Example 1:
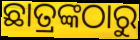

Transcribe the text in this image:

ଛାତ୍ରଙ୍କଠାରୁ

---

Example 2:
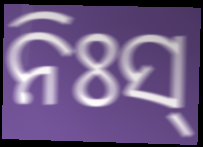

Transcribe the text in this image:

ନିଃସ୍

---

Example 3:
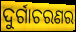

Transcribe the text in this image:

ଦୁର୍ଗାଚରଣର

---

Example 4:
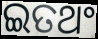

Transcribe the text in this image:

ଇତଥଂ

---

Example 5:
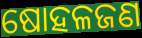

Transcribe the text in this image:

ଷୋହଳଜଣ